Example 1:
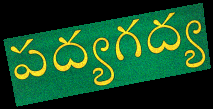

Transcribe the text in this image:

పద్యగద్య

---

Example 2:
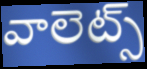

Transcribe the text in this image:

వాలెట్స్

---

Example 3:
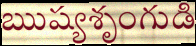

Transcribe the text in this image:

ఋష్యశృంగుడి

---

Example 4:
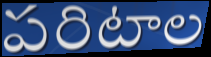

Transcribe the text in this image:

పరిటాల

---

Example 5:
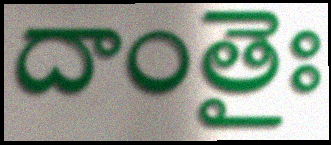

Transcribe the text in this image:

దాంతైః